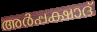
അർപ്പക്ഷാദ്